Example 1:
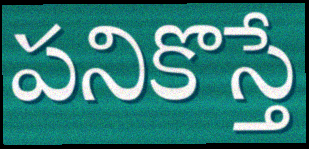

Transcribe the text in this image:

పనికొస్తే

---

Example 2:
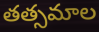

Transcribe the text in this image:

తత్సమాల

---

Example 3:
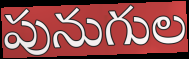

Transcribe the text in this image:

పునుగుల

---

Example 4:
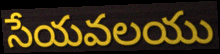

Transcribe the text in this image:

సేయవలయు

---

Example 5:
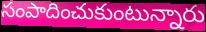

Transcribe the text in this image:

సంపాదించుకుంటున్నారు